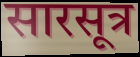
सारसूत्र